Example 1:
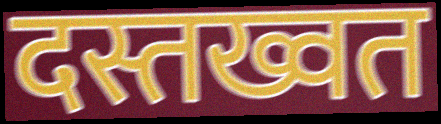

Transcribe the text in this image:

दस्तख्वत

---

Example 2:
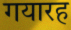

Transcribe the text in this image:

गयारह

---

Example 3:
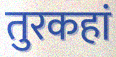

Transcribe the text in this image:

तुरकहां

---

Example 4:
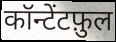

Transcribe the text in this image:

कॉन्टेंटफ़ुल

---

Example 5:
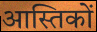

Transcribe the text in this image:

आस्तिकों